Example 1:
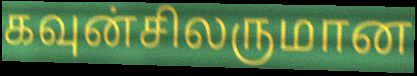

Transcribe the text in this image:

கவுன்சிலருமான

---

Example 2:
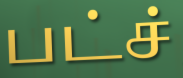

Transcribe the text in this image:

பட்ச்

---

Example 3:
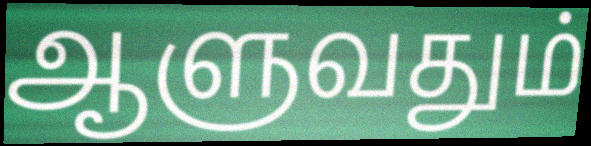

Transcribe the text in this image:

ஆளுவதும்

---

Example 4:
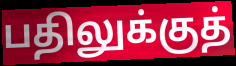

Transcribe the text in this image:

பதிலுக்குத்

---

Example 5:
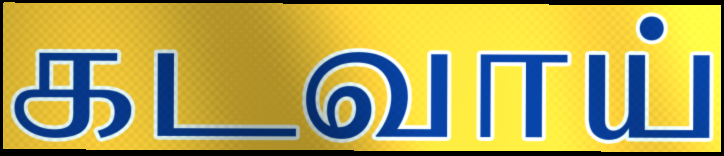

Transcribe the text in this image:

கடவாய்